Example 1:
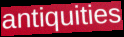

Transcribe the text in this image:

antiquities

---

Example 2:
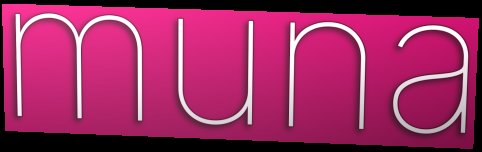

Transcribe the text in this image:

muna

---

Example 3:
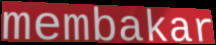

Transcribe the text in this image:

membakar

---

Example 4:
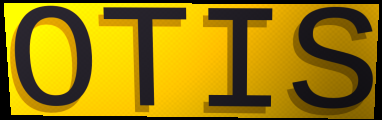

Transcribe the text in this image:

OTIS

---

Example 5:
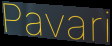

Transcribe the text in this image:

Pavari